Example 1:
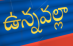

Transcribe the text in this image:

ఉన్నవల్లా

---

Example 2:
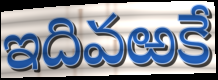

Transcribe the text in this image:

ఇదివఱకే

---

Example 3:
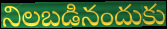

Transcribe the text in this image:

నిలబడినందుకు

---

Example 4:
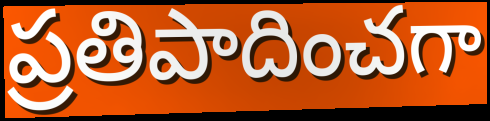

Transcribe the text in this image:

ప్రతిపాదించగా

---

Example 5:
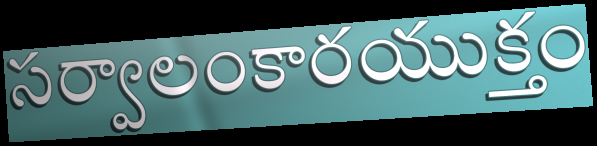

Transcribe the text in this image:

సర్వాలంకారయుక్తం